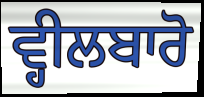
ਵ੍ਹੀਲਬਾਰੋ